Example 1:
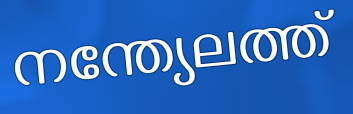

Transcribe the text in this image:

നന്ത്യേലത്ത്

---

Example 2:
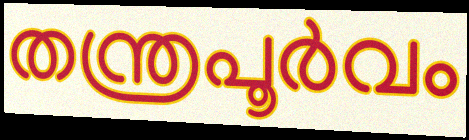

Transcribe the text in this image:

തന്ത്രപൂർവം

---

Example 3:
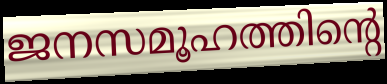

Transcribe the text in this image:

ജനസമൂഹത്തിന്റെ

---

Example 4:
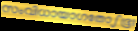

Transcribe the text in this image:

സംവിധായാഗതോഽഭൂഃ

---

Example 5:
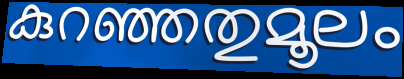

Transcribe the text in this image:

കുറഞ്ഞതുമൂലം